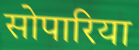
सोपारिया